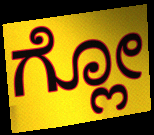
ಗ್ಲೋ